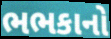
ભભકાનો